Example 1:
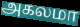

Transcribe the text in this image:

அகலமா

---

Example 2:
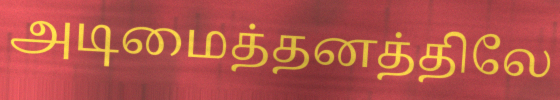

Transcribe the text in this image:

அடிமைத்தனத்திலே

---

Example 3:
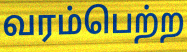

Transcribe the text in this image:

வரம்பெற்ற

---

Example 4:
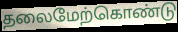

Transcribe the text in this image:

தலைமேற்கொண்டு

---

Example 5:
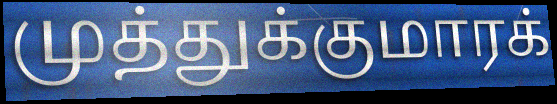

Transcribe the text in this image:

முத்துக்குமாரக்